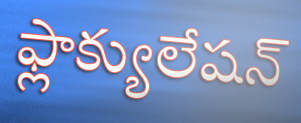
ఫ్లాక్యులేషన్